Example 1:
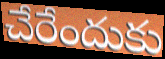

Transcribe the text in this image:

చేరేందుకు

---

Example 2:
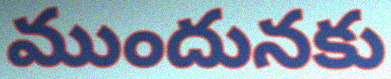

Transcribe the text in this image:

ముందునకు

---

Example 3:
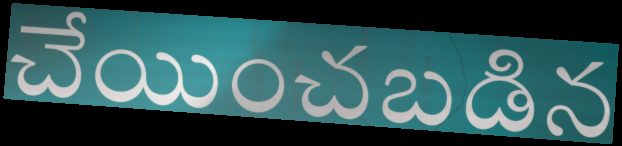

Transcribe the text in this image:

చేయించబడిన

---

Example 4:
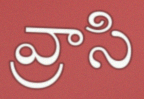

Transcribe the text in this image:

వ్రాసి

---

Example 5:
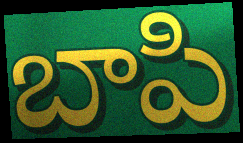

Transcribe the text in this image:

బాపి